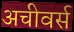
अचीवर्स